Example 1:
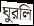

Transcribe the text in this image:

ঘুরলি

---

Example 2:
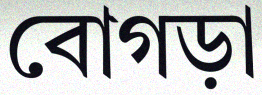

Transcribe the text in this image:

বোগড়া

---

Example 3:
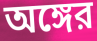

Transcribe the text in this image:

অঙ্গের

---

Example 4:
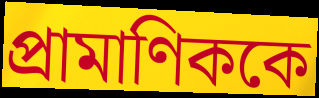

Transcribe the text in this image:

প্রামাণিককে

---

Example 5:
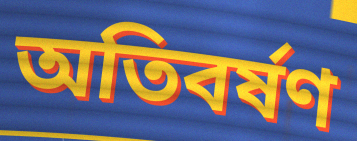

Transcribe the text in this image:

অতিবর্ষণ